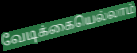
வேடிக்கையெல்லாம்